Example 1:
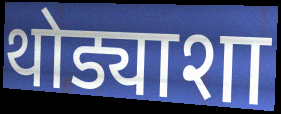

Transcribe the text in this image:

थोड्याशा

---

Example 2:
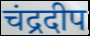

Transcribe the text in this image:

चंद्रदीप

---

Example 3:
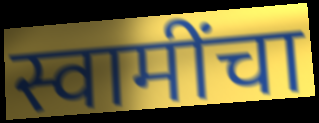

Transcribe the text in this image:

स्वामींचा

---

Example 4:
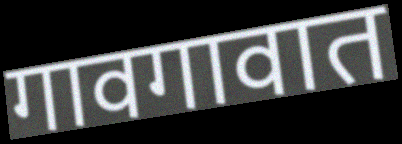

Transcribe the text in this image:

गावगावात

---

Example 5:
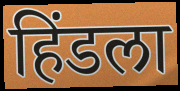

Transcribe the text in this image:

हिंडला